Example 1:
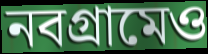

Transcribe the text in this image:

নবগ্রামেও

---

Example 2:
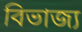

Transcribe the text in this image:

বিভাজ্য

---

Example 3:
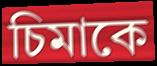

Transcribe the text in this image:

চিমাকে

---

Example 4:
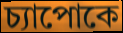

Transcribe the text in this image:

চ্যাপোকে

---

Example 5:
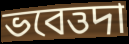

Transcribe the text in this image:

ভবেত্তদা